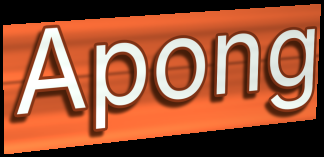
Apong